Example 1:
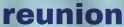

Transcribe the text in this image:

reunion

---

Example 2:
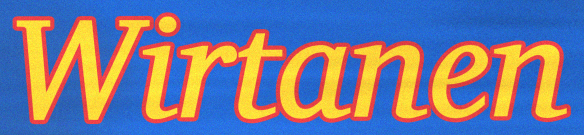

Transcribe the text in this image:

Wirtanen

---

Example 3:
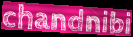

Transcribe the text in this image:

chandnibi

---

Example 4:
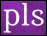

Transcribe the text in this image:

pls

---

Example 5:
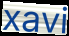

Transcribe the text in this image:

xavi